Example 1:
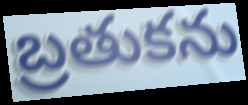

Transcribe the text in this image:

బ్రతుకను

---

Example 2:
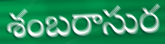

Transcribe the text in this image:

శంబరాసుర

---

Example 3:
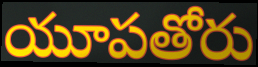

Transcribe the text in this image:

యూపతోరు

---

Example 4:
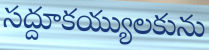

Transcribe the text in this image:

సద్దూకయ్యులకును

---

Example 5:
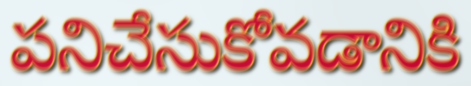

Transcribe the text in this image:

పనిచేసుకోవడానికి